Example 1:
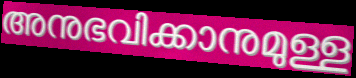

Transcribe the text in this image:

അനുഭവിക്കാനുമുള്ള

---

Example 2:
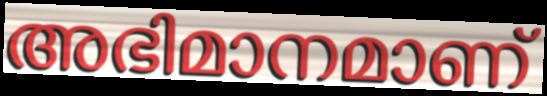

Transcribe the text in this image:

അഭിമാനമാണ്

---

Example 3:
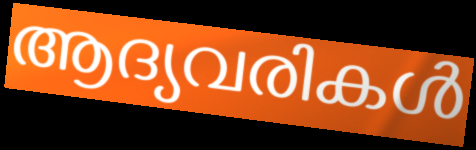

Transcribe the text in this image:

ആദ്യവരികൾ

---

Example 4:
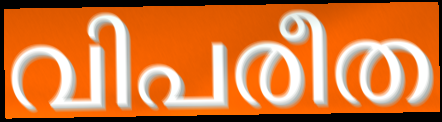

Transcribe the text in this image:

വിപരീത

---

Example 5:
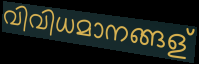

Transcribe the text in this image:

വിവിധമാനങ്ങള്